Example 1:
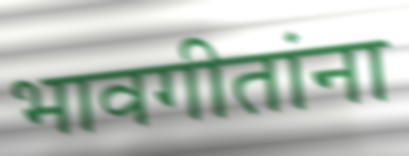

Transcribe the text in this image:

भावगीतांना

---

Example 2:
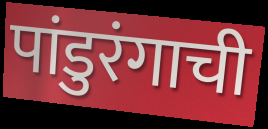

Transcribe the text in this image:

पांडुरंगाची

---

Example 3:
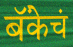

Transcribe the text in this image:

बॅंकेचं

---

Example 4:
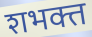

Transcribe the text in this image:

शभक्त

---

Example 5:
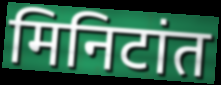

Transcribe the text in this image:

मिनिटांत